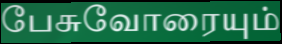
பேசுவோரையும்